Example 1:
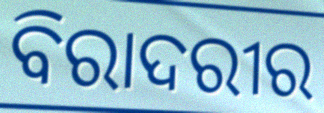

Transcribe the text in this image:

ବିରାଦରୀର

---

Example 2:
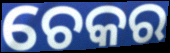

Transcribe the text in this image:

ଚେକର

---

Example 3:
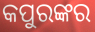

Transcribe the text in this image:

କପୁରଙ୍କର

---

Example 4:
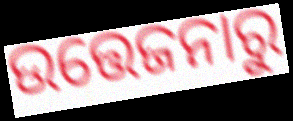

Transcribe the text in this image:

ଉତ୍ତେଜନାରୁ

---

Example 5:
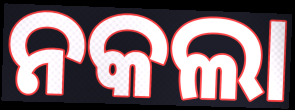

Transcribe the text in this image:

ନକଲା